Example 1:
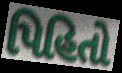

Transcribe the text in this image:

પિહિતો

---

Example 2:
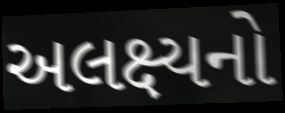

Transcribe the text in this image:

અલક્ષ્યનો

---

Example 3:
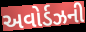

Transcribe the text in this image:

અવોર્ડઝની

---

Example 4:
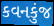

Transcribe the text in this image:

કવનકુંજ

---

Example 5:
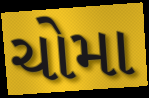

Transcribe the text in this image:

ચોમા